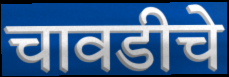
चावडीचे